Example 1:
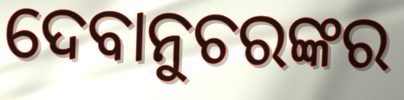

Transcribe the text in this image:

ଦେବାନୁଚରଙ୍କର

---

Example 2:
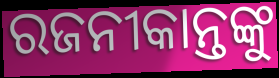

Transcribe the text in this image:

ରଜନୀକାନ୍ତଙ୍କୁ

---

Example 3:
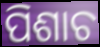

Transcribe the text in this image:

ପିଶାଚ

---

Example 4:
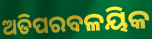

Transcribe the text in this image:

ଅତିପରବଳୟିକ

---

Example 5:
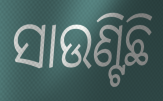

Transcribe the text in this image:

ସାଉଣ୍ଟିଛି